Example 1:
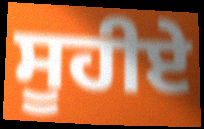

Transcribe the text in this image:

ਸੂਹੀਏ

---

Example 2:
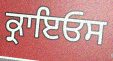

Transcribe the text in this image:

ਕ੍ਰਾਇਓਸ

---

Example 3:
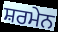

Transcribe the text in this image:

ਸ਼ਰਮੇਨ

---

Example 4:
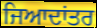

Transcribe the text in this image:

ਜਿਆਦਾਂਤਰ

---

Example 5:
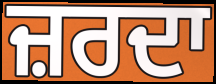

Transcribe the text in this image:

ਜ਼ਰਦਾ